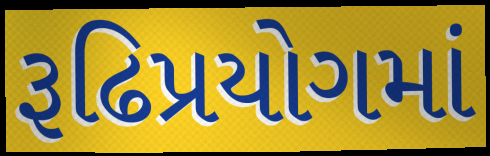
રૂઢિપ્રયોગમાં